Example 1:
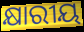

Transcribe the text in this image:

କ୍ଷାରୀୟ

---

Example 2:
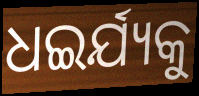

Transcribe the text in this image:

ଧଇର୍ଯ୍ୟକୁ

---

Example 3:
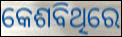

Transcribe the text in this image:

କେଶବିଥିରେ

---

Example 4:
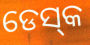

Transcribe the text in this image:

ଡେସ୍‌କ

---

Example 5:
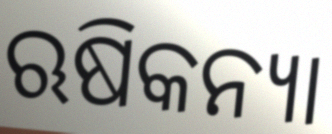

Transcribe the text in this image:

ଋଷିକନ୍ୟା